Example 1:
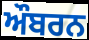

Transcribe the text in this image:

ਔਬਰਨ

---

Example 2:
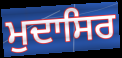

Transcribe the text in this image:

ਮੁਦਾਸਿਰ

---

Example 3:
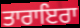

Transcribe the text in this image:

ਤਾਰਾਇਰਾ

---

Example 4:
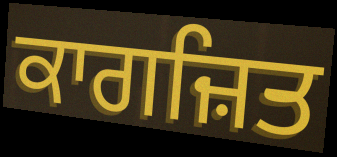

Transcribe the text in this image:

ਕਾਗਜ਼ਿਤ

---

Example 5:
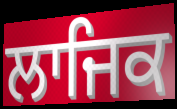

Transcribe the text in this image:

ਲਾਜਿਕ